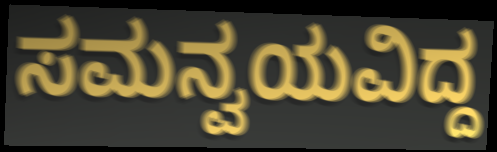
ಸಮನ್ವಯವಿದ್ದ